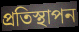
প্রতিস্থাপন